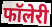
फॉलेरी